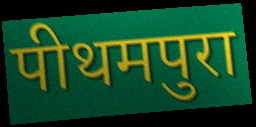
पीथमपुरा